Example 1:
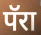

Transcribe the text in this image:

पॅरा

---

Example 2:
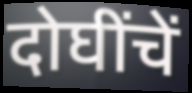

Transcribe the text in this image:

दोघींचें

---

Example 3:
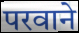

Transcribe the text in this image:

परवाने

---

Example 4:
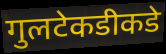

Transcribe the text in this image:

गुलटेकडीकडे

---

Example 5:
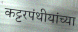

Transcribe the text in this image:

कट्टरपंथीयांच्या